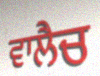
ਵਾਲੈਚ